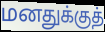
மனதுக்குத்